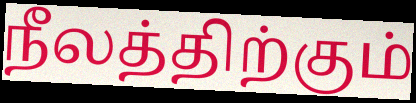
நீலத்திற்கும்